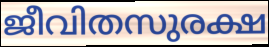
ജീവിതസുരക്ഷ